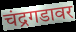
चंद्रगडावर